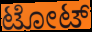
ಟೋಟ್